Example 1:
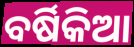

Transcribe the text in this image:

ବର୍ଷିକିଆ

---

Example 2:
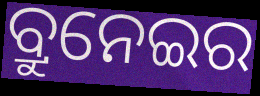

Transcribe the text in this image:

ବ୍ରୁନେଇର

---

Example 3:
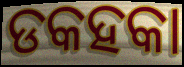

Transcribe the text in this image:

ଡକହକା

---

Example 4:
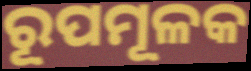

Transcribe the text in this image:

ରୂପମୂଳକ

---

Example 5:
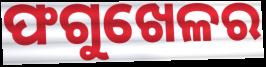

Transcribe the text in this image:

ଫଗୁଖେଳର